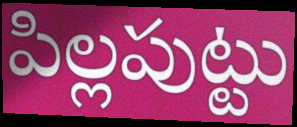
పిల్లపుట్టు